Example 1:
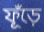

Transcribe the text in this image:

ফূঁড়ে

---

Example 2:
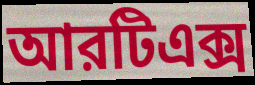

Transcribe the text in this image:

আরটিএক্স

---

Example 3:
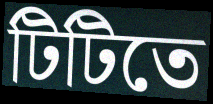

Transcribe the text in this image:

টিটিতে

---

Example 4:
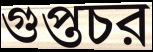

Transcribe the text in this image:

গুপ্তচর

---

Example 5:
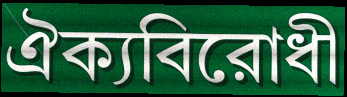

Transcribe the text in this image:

ঐক্যবিরোধী